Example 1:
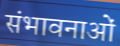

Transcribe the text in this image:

संभावनाओं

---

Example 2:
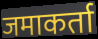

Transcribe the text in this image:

जमाकर्ता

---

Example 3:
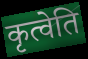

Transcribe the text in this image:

कृत्वेति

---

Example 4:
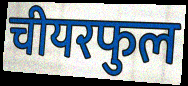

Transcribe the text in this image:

चीयरफुल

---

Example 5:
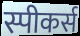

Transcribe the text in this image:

स्पीकर्स